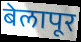
बेलापूर